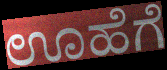
ಊಹೆಗೆ